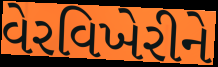
વેરવિખેરીને